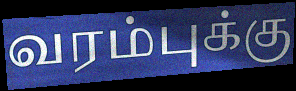
வரம்புக்கு